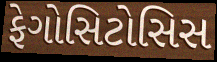
ફેગોસિટોસિસ